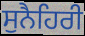
ਸੁਨੈਹਿਰੀ